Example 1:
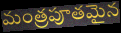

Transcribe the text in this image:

మంత్రపూతమైన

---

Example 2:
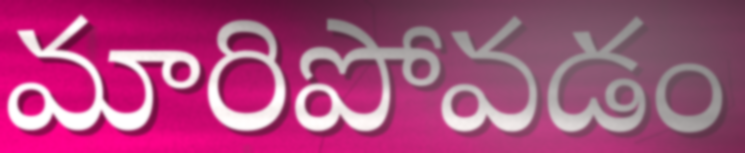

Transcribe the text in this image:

మారిపోవడం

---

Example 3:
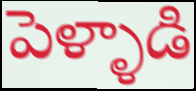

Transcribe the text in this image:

పెళ్ళాడి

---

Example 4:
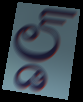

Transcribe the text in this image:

ల్డ్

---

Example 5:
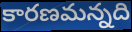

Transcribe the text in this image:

కారణమన్నది